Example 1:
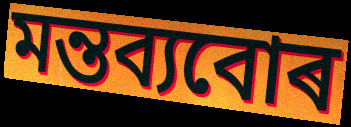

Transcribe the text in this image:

মন্তব্যবোৰ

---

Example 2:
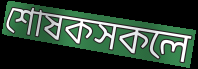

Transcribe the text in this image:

শোষকসকলে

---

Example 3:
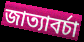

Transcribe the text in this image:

জাত্যাবৰ্চা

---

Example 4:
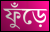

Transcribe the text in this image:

ফুঁড়ে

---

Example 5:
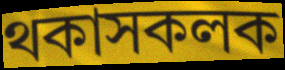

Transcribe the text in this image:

থকাসকলক